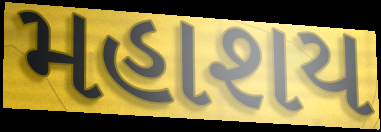
મહાશય